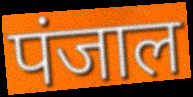
पंजाल